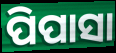
ପିପାସା